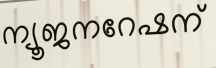
ന്യൂജനറേഷന്